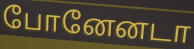
போனேனடா